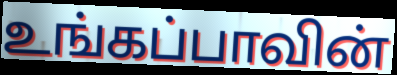
உங்கப்பாவின்